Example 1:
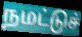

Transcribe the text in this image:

நமட்டுச்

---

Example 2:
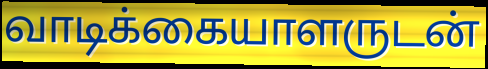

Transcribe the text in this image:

வாடிக்கையாளருடன்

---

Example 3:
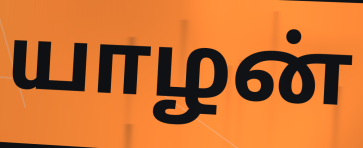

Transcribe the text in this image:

யாழன்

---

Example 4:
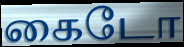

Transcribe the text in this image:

கைடோ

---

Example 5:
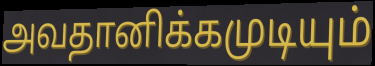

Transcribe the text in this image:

அவதானிக்கமுடியும்